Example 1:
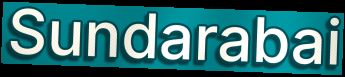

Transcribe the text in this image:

Sundarabai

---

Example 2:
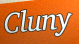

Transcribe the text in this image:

Cluny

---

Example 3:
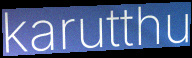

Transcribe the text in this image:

karutthu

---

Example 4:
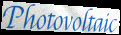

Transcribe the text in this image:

Photovoltaic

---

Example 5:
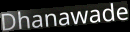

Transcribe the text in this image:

Dhanawade